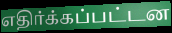
எதிர்க்கப்பட்டன